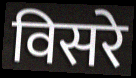
विसरे